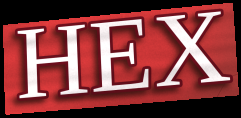
HEX